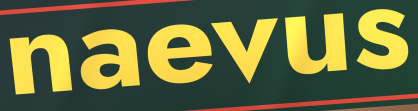
naevus